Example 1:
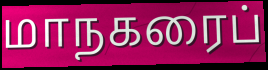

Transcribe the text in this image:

மாநகரைப்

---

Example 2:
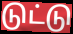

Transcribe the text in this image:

டுட்டு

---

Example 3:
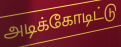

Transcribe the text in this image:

அடிக்கோடிட்டு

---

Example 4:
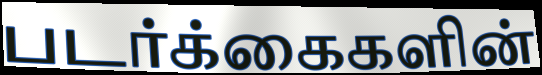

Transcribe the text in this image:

படர்க்கைகளின்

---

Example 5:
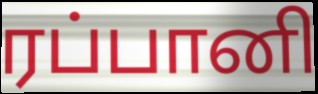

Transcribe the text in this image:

ரப்பானி